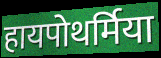
हायपोथर्मिया